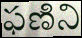
ఫణిని